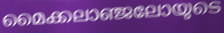
മൈക്കലാഞ്ജലോയുടെ